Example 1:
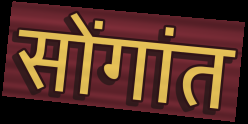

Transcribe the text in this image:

सोंगांत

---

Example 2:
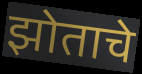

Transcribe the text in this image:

झोताचे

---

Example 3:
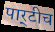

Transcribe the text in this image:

पार्टीच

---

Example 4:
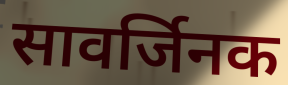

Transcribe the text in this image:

सावर्जिनक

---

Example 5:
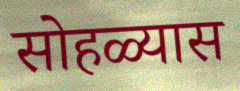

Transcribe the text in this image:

सोहळ्यास